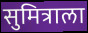
सुमित्राला